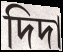
দিদা